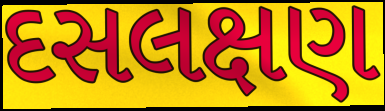
દસલક્ષણ